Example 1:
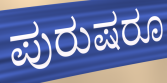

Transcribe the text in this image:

ಪುರುಷರೂ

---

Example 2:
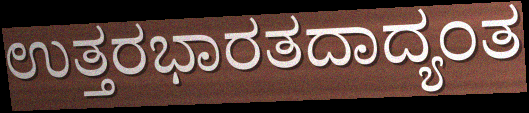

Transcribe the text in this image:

ಉತ್ತರಭಾರತದಾದ್ಯಂತ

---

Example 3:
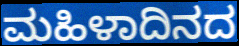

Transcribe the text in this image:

ಮಹಿಳಾದಿನದ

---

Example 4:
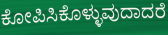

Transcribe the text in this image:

ಕೋಪಿಸಿಕೊಳ್ಳುವುದಾದರೆ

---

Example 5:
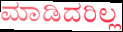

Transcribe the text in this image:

ಮಾಡಿದರಿಲ್ಲ